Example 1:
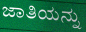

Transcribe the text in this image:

ಜಾತಿಯನ್ನು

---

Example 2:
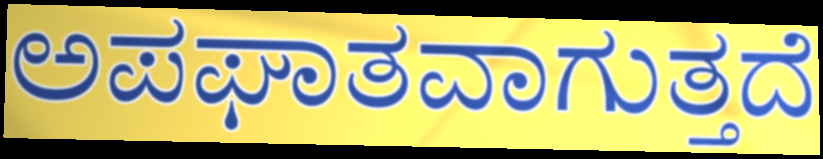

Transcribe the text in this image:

ಅಪಘಾತವಾಗುತ್ತದೆ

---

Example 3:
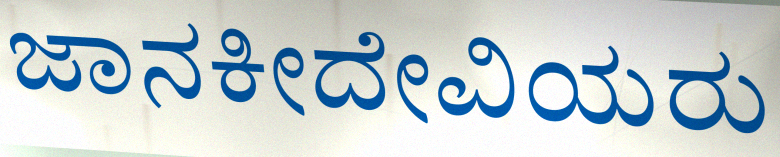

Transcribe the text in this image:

ಜಾನಕೀದೇವಿಯರು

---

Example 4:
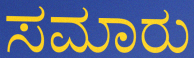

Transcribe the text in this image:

ಸಮಾರು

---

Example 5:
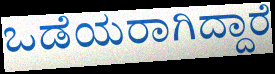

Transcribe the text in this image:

ಒಡೆಯರಾಗಿದ್ದಾರೆ